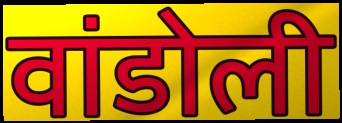
वांडोली